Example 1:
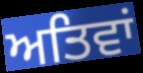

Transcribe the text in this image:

ਅਤਿਵਾਂ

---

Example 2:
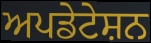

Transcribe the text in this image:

ਅਪਡੇਟੇਸ਼ਨ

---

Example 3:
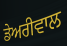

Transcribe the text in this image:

ਡੇਅਰੀਵਾਲ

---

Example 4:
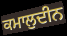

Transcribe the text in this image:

ਕਮਾਲੁਦੀਨ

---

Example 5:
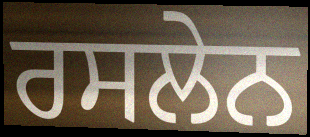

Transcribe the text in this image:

ਰਸਲੇਨ